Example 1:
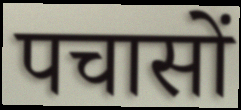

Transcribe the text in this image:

पचासों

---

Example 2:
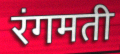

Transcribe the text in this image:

रंगमती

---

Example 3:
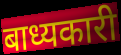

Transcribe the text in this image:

बाध्यकारी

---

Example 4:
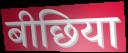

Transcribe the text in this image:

बीछिया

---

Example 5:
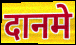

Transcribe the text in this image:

दानमे